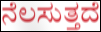
ನೆಲಸುತ್ತದೆ